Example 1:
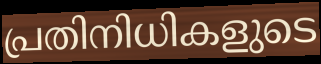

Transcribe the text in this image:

പ്രതിനിധികളുടെ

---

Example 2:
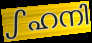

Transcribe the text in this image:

ഽഹനി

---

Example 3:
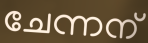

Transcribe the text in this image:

ചേന്നന്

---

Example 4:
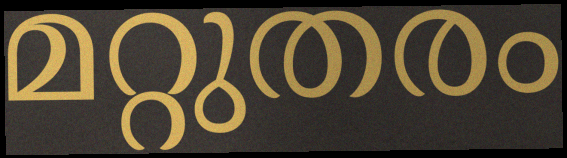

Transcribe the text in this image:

മറ്റുതരം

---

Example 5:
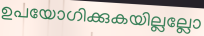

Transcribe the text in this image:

ഉപയോഗിക്കുകയില്ലല്ലോ